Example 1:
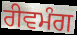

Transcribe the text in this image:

ਰੀਵਮੰਗ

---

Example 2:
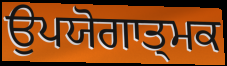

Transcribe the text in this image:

ਉਪਯੋਗਾਤ੍ਮਕ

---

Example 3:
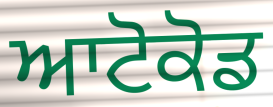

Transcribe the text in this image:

ਆਟੋਕੋਡ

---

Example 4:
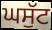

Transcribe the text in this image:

ਘਸੁੱਟ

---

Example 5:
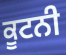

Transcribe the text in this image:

ਕੂਟਨੀ